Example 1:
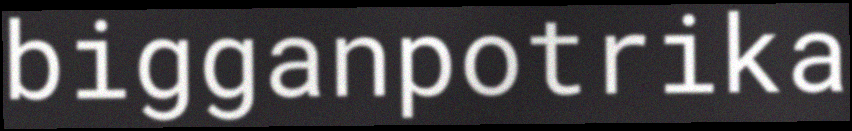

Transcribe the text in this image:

bigganpotrika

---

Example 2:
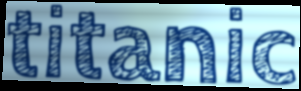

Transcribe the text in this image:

titanic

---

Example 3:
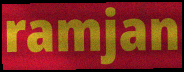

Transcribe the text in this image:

ramjan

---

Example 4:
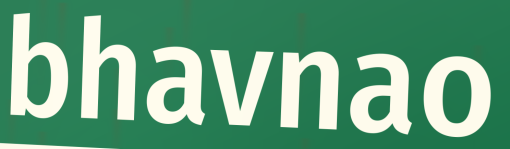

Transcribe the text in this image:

bhavnao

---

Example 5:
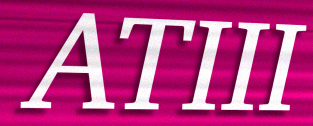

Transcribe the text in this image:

ATIII